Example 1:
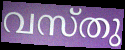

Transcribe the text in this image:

വസ്തു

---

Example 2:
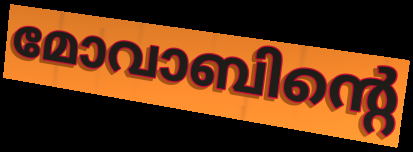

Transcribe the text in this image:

മോവാബിന്റെ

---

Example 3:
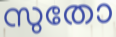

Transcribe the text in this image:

സുതോ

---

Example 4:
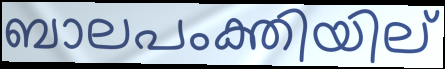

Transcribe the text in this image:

ബാലപംക്തിയില്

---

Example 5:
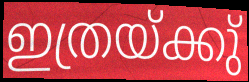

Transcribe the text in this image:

ഇത്രയ്ക്കു്